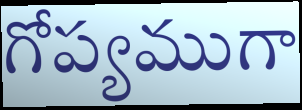
గోప్యముగా